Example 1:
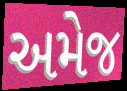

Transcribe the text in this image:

અમેજ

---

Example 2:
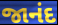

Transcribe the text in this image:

જાનંદ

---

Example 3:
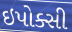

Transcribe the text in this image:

ઇપોક્સી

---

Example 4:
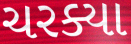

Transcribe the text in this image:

ચરક્યા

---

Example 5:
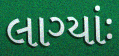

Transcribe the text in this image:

લાગ્યાંઃ